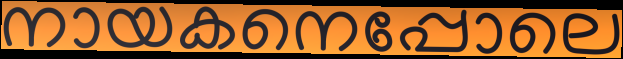
നായകനെപ്പോലെ